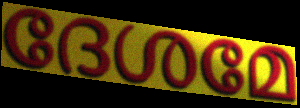
ദേശമേ